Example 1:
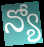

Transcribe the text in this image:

న్యో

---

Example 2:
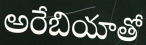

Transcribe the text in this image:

అరేబియాతో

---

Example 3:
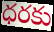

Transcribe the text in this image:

ధరకు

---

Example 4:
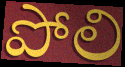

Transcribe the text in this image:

పోలి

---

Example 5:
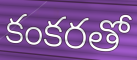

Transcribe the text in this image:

కంకరతో